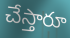
చేస్తారూ